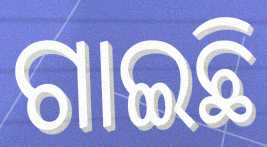
ଗାଇଛି